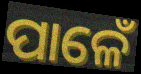
ପାଳେଁ